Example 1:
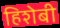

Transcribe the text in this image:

हिशेबी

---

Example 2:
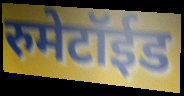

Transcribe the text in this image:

रुमेटॉईड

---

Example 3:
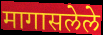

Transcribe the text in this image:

मागासलेले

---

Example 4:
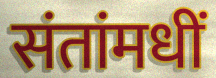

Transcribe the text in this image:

संतांमधीं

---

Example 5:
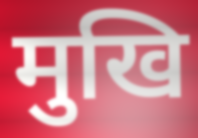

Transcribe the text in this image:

मुखि